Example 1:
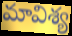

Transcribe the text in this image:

మావిశ్య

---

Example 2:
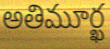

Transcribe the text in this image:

అతిమూర్ఖ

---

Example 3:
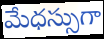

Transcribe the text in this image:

మేధస్సుగా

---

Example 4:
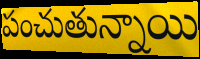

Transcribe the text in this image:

పంచుతున్నాయి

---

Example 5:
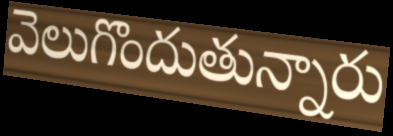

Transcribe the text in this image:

వెలుగొందుతున్నారు